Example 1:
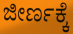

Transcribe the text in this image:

ಜೀರ್ಣಕ್ಕೆ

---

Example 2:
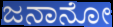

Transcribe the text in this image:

ಜನಾನೋ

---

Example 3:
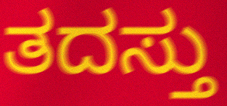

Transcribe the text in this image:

ತದಸ್ತು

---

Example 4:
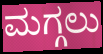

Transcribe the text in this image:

ಮಗ್ಗಲು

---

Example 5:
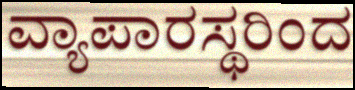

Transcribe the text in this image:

ವ್ಯಾಪಾರಸ್ಥರಿಂದ